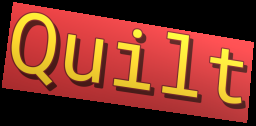
Quilt